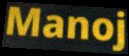
Manoj